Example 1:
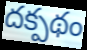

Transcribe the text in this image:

దక్పథం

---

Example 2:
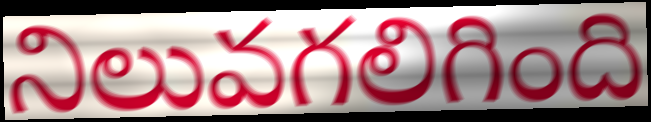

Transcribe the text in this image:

నిలువగలిగింది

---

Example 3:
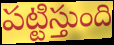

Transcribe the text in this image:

పట్టిస్తుంది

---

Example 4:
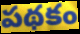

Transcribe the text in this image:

పథకం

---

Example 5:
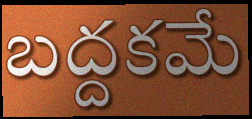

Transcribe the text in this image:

బద్దకమే